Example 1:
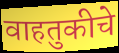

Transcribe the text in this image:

वाहतुकीचे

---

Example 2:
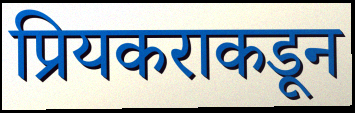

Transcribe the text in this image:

प्रियकराकडून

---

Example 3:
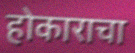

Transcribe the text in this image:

होकाराचा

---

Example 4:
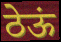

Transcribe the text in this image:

ठेऊं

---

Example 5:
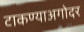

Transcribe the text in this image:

टाकण्याअगोदर